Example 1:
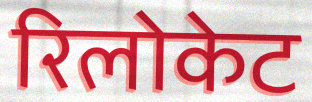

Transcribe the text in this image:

रिलोकेट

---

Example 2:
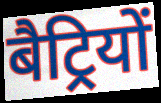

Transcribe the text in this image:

बैट्रियों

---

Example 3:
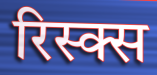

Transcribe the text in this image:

रिस्क्स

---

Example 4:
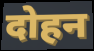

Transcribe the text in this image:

दोहन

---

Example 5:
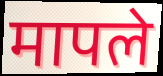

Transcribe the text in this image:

मापले